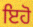
ਇਹੋ